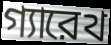
গ্যারেথ